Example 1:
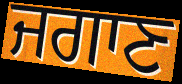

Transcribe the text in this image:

ਜਗਾਣ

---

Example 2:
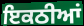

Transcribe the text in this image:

ਇਕਠੀਆਂ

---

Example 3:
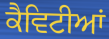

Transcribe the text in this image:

ਕੈਵਿਟੀਆਂ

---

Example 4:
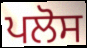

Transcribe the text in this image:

ਪਲੋਸ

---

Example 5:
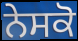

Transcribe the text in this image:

ਨੇਸਕੋ